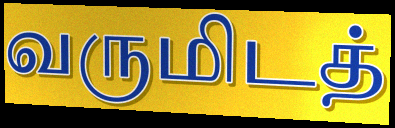
வருமிடத்